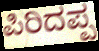
ಪಿರಿದಪ್ಪ